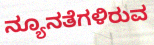
ನ್ಯೂನತೆಗಳಿರುವ